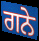
ਗਨੇ